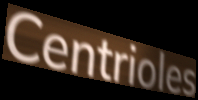
Centrioles